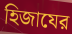
হিজাযের